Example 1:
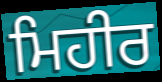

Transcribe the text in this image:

ਮਿਹੀਰ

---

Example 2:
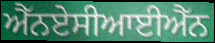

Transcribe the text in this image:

ਐੱਨਏਸੀਆਈਐੱਨ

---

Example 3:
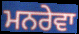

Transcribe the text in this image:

ਮਨਰੇਵਾ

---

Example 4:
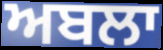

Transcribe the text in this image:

ਅਬਲਾ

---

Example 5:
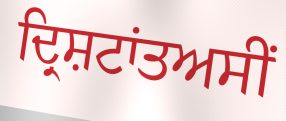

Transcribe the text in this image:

ਦ੍ਰਿਸ਼ਟਾਂਤਅਸੀਂ